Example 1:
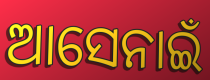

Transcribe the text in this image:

ଆସେନାଇଁ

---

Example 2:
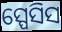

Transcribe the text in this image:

ସ୍ପେସିସ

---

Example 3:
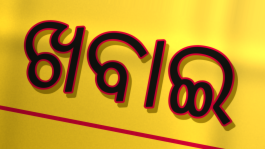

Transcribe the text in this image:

ଖବାଇ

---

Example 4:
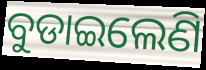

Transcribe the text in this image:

ବୁଡାଇଲେଣି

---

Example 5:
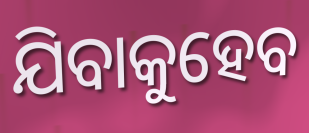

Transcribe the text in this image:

ଯିବାକୁହେବ